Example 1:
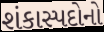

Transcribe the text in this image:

શંકાસ્પદોનો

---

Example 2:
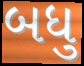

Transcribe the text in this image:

બધુ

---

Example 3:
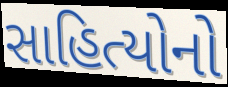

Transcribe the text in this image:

સાહિત્યોનો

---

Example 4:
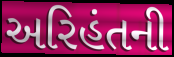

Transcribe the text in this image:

અરિહંતની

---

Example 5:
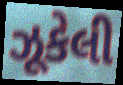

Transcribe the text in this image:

ઝૂકેલી